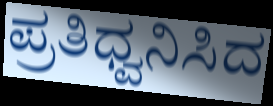
ಪ್ರತಿಧ್ವನಿಸಿದ